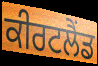
ਕੀਰਟਲੈਂਡ